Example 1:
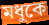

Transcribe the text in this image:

মধুকে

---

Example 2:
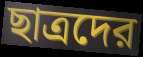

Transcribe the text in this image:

ছাত্রদের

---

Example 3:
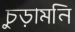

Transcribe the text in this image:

চুড়ামনি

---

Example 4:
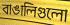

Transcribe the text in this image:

বাঙালিগুলো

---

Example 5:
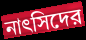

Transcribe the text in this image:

নাৎসিদের